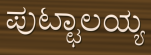
ಪುಟ್ಟಾಲಯ್ಯ